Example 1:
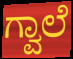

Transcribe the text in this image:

ಗ್ವಾಲೆ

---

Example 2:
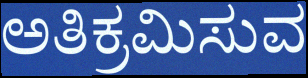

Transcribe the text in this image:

ಅತಿಕ್ರಮಿಸುವ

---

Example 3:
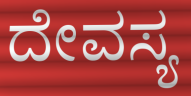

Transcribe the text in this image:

ದೇವಸ್ಯ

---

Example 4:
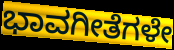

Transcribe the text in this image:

ಭಾವಗೀತೆಗಳೇ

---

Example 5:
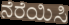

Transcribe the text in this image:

ನೆರೆಯಿಸಿ